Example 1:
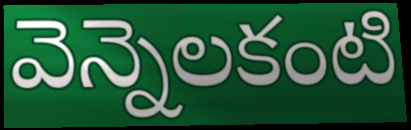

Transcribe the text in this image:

వెన్నెలకంటి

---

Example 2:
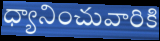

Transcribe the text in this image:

ధ్యానించువారికి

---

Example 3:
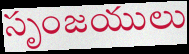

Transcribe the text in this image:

సృంజయులు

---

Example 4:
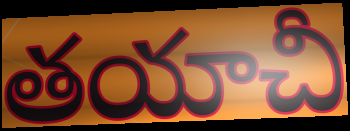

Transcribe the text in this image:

తయాచీ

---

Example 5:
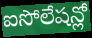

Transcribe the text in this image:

ఐసోలేషన్లో